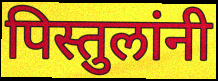
पिस्तुलांनी